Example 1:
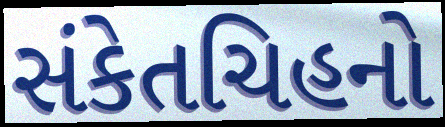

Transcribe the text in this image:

સંકેતચિહનો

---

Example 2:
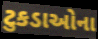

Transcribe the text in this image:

ટુકડાઓના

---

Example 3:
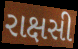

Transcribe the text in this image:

રાક્ષસી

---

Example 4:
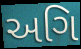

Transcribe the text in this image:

અગિ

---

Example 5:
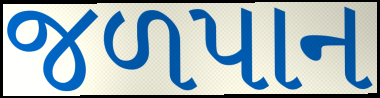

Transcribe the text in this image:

જળપાન